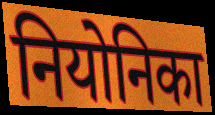
नियोनिका